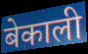
बेकाली